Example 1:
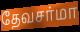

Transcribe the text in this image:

தேவசர்மா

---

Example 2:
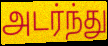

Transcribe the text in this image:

அடர்ந்து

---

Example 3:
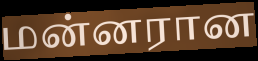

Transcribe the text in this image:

மன்னரான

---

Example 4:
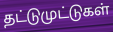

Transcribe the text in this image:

தட்டுமுட்டுகள்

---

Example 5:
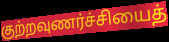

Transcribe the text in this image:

குற்றவுணர்ச்சியைத்